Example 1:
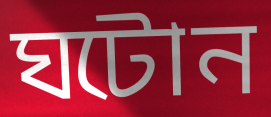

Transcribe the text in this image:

ঘটোন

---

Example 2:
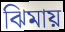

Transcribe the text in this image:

ঝিমায়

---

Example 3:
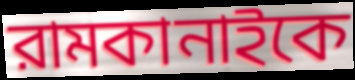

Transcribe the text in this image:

রামকানাইকে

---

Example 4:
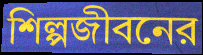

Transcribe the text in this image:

শিল্পজীবনের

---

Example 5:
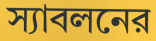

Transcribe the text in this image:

স্যাবলনের